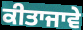
ਕੀਤਾਜਾਵੇ